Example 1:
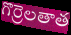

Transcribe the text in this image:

గొర్రెలతాత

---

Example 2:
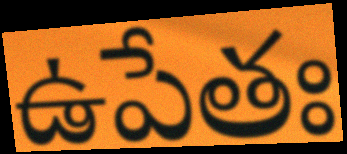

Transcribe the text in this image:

ఉపేతః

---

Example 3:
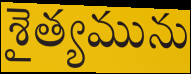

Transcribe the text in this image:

శైత్యమును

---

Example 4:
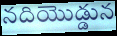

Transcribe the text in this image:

నదియొడ్డున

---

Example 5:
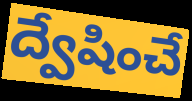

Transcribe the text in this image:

ద్వేషించే